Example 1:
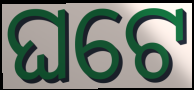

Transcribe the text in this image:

ଘଟେ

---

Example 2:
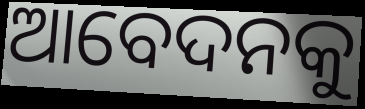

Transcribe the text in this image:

ଆବେଦନକୁ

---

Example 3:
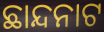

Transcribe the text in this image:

ଛାନ୍ଦନାଟ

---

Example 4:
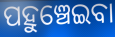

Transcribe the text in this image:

ପହୁଞ୍ଚେଇବା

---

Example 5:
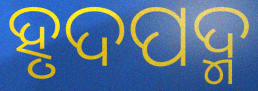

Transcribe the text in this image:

ହୃଦପଦ୍ମ